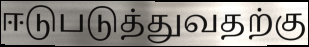
ஈடுபடுத்துவதற்கு